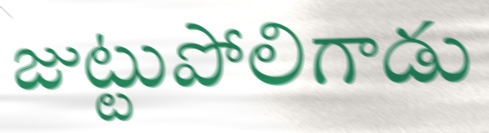
జుట్టుపోలిగాడు